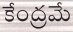
కేంద్రమే